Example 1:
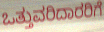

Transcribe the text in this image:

ಒತ್ತುವರಿದಾರರಿಗೆ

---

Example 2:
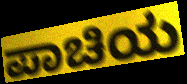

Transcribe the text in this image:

ಪಾಚಿಯ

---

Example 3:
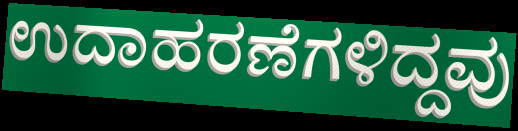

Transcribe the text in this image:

ಉದಾಹರಣೆಗಳಿದ್ದವು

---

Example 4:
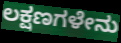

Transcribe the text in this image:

ಲಕ್ಷಣಗಳೇನು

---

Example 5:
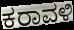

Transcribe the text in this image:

ಕರಾವಳಿ